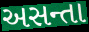
અસન્તા